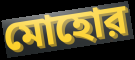
মোহোর